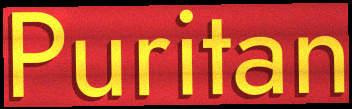
Puritan